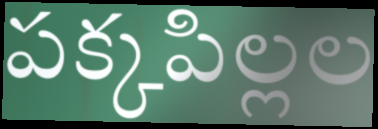
పక్కపిల్లల